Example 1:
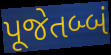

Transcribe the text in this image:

પૂજેતબ્બં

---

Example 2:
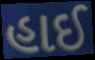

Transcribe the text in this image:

હાઈ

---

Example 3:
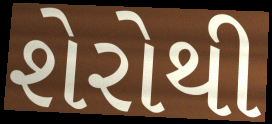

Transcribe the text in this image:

શેરોથી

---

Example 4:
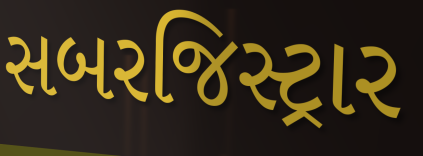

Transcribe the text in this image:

સબરજિસ્ટ્રાર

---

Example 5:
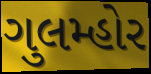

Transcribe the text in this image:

ગુલમ્હોર